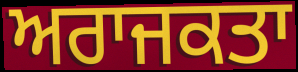
ਅਰਾਜਕਤਾ